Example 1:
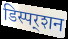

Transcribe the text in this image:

डिस्पर्शन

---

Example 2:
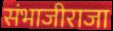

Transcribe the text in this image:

संभाजीराजा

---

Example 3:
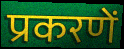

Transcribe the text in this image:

प्रकरणें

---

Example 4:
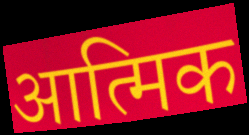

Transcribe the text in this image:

आत्मिक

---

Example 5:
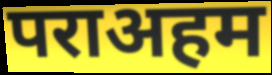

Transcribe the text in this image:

पराअहम